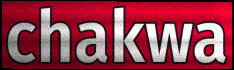
chakwa